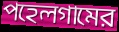
পহেলগামের